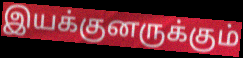
இயக்குனருக்கும்